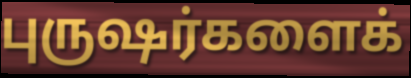
புருஷர்களைக்